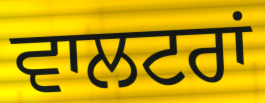
ਵਾਲਟਰਾਂ